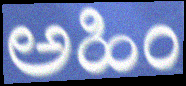
ಅಹಿಂ